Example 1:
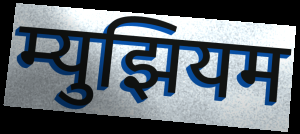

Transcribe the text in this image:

म्युझियम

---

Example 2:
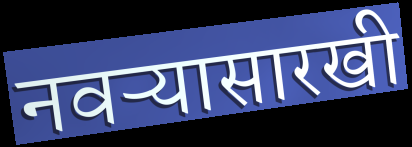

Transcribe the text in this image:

नवऱ्यासारखी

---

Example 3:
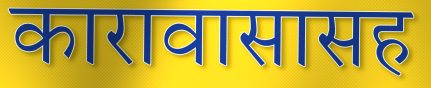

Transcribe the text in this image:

कारावासासह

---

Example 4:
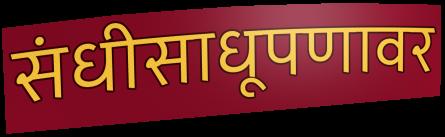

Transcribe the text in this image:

संधीसाधूपणावर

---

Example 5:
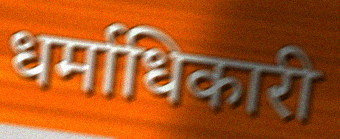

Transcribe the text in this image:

धर्माधिकारी